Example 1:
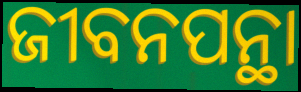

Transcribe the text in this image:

ଜୀବନପନ୍ଥା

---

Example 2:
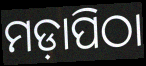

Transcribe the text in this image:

ମଡ଼ାପିଠା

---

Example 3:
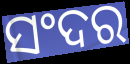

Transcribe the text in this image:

ସଂଦର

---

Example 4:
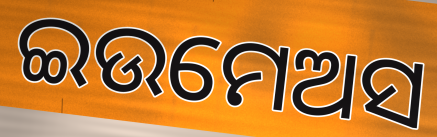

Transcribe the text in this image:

ଇଉମେଅସ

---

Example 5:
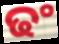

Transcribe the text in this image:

ଢଂ